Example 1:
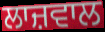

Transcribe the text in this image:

ਲਾਜ਼ਵਾਲ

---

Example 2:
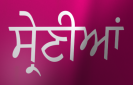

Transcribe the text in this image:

ਸ੍ਰੇਣੀਆਂ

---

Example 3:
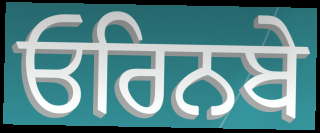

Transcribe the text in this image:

ਓਰਿਨਬੇ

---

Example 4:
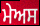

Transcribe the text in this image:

ਮੇਅਸ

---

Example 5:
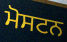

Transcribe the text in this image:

ਮੋਸਟਨ